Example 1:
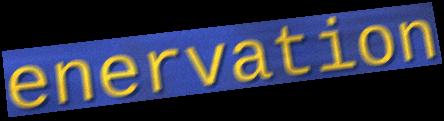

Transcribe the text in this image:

enervation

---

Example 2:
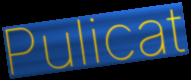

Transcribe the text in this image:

Pulicat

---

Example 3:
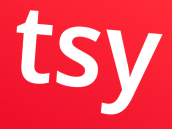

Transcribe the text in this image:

tsy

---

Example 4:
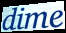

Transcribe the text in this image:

dime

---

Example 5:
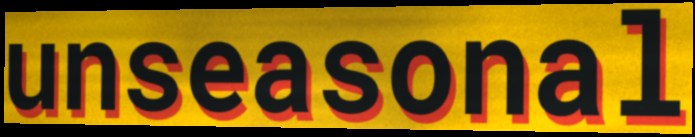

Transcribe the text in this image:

unseasonal